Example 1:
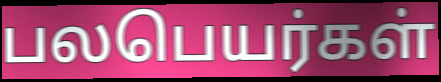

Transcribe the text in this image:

பலபெயர்கள்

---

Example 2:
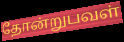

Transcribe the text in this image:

தோன்றுபவள்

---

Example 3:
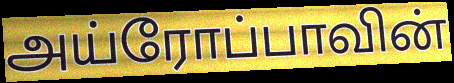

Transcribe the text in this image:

அய்ரோப்பாவின்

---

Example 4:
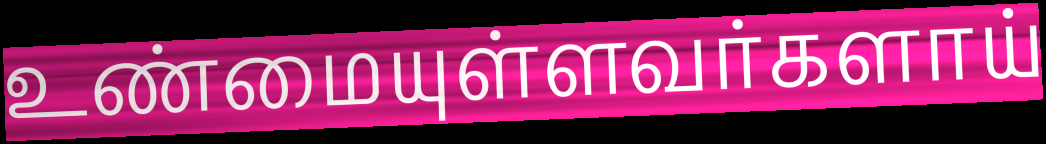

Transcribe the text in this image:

உண்மையுள்ளவர்களாய்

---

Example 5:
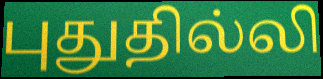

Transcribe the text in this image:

புதுதில்லி